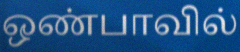
ஒண்பாவில்